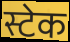
स्टेक